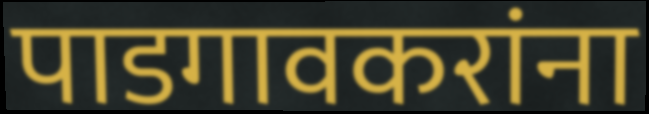
पाडगावकरांना